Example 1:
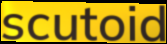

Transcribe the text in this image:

scutoid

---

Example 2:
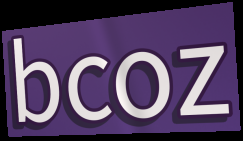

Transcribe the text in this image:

bcoz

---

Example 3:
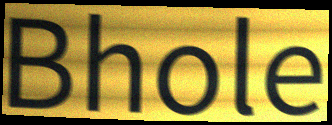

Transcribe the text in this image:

Bhole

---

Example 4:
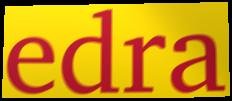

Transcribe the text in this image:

edra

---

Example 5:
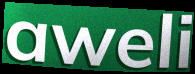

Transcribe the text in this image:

aweli